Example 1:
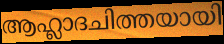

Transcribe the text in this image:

ആഹ്ലാദചിത്തയായി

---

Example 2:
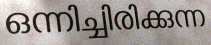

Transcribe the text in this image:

ഒന്നിച്ചിരിക്കുന്ന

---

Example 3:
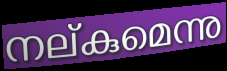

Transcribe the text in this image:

നല്‌കുമെന്നു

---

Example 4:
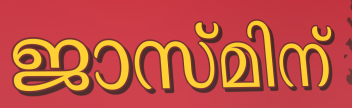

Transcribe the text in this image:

ജാസ്മിന്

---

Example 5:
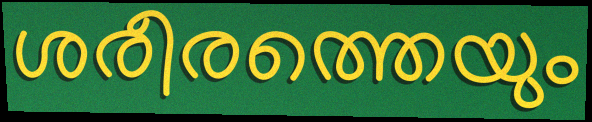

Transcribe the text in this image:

ശരീരത്തെയും